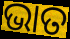
ଭାତ